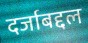
दर्जाबद्दल